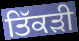
ਤਿੱਕੜੀ